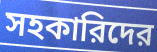
সহকারিদের